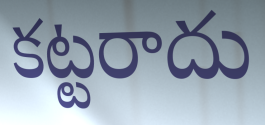
కట్టరాదు